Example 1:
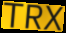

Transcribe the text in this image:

TRX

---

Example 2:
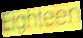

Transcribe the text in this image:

Eighteen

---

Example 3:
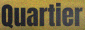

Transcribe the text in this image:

Quartier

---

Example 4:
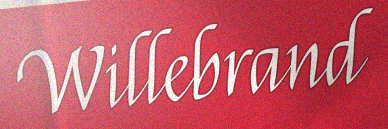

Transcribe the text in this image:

Willebrand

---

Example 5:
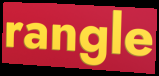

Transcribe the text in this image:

rangle